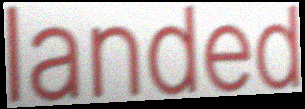
landed